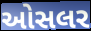
ઓસલર